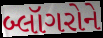
બ્લૉગરોને